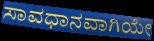
ಸಾವಧಾನವಾಗಿಯೇ